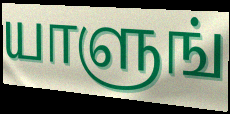
யாளுங்